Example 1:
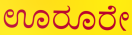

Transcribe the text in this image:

ಊರೂರೇ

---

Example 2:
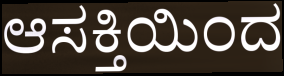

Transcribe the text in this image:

ಆಸಕ್ತಿಯಿಂದ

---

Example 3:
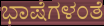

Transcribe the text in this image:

ಭಾಷೆಗಳಂತೆ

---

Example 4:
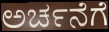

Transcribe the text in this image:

ಅರ್ಚನೆಗೆ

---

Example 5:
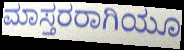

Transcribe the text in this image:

ಮಾಸ್ತರರಾಗಿಯೂ